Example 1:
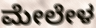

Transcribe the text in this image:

ಮೇಲೇಳ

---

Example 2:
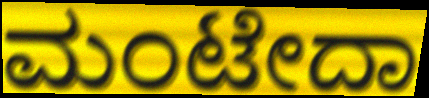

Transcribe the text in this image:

ಮಂಟೇದಾ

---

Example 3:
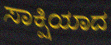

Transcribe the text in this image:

ಸಾಕ್ಷಿಯಾದ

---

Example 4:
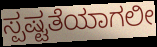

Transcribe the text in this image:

ಸ್ಪಷ್ಟತೆಯಾಗಲೀ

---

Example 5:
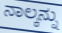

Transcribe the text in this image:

ನಾಲ್ಕನ್ನು